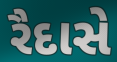
રૈદાસે